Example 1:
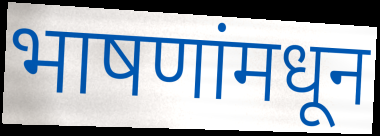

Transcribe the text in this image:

भाषणांमधून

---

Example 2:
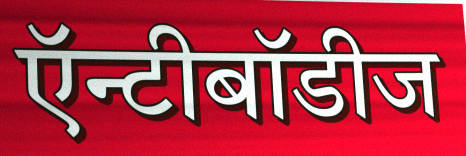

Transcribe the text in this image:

ऍन्टीबॉडीज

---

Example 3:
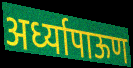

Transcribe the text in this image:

अर्ध्यापाऊण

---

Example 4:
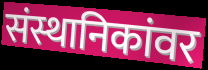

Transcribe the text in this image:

संस्थानिकांवर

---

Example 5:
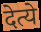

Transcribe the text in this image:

देत्ये